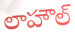
లాహౌల్